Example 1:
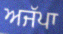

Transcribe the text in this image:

ਅਜੱਪਾ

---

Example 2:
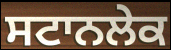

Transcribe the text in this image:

ਸਟਾਨਲੇਕ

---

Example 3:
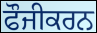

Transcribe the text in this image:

ਫੌਜੀਕਰਨ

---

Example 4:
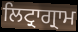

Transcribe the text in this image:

ਲਿਟ੍ਰਾਗ੍ਰਾਮ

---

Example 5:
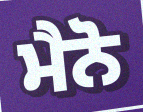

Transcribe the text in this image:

ਮੈਨੋ